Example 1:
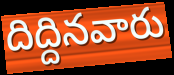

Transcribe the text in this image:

దిద్దినవారు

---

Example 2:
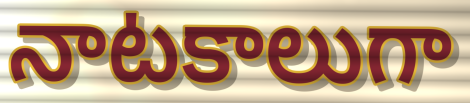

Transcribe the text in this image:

నాటకాలుగా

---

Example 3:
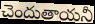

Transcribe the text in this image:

చెందుతాయనీ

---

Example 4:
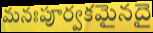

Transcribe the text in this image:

మనఃపూర్వకమైనదై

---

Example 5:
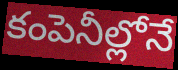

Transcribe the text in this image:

కంపెనీల్లోనే